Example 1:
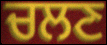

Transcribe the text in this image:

ਚਲਣ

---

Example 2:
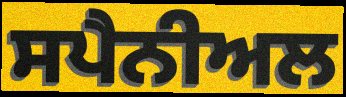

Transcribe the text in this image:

ਸਪੈਨੀਅਲ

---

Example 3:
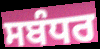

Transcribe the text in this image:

ਸਬੰਧਰ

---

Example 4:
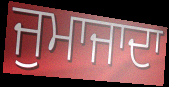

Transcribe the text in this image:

ਜੁਮਾਜਾਦਾ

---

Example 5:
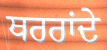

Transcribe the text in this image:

ਥਰਰਾਂਦੇ